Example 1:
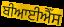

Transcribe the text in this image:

ਬੀਆਈਐੱਸ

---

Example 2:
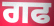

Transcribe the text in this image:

ਗਫ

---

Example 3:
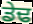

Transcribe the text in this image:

ਡੇਢ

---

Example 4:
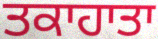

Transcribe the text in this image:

ਤਕਾਹਾਤਾ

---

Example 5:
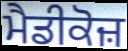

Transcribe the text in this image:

ਮੈਡੀਕੋਜ਼